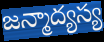
జన్మాద్యస్య